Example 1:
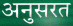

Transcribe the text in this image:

अनुसरत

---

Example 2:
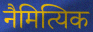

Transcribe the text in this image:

नैमित्यिक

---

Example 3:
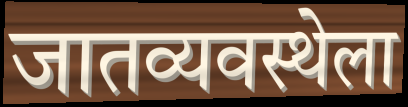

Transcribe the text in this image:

जातव्यवस्थेला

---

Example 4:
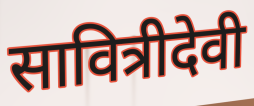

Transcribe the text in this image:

सावित्रीदेवी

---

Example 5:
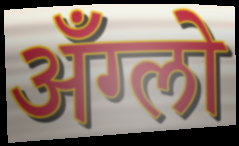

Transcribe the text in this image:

अँग्लो